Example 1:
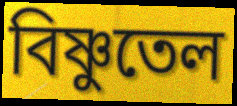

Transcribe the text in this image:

বিষ্ণুতেল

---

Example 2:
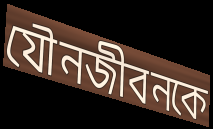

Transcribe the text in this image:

যৌনজীবনকে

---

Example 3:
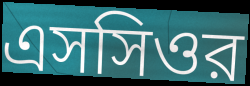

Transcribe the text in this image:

এসসিওর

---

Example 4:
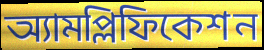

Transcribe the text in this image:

অ্যামপ্লিফিকেশন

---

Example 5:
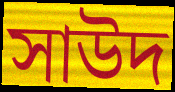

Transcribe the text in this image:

সাউদ